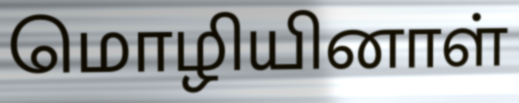
மொழியினாள்